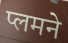
प्लमने